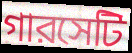
গারসেটি